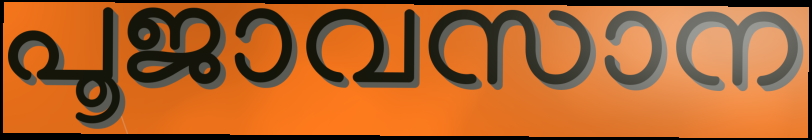
പൂജാവസാന